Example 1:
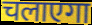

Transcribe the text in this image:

चलाएगा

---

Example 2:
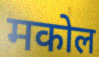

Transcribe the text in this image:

मकोल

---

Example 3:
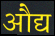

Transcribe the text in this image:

औद्य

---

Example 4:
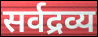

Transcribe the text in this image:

सर्वद्रव्य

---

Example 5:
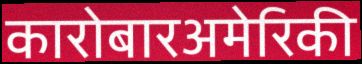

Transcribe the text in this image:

कारोबारअमेरिकी